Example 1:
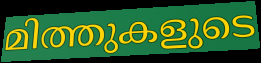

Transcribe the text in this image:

മിത്തുകളുടെ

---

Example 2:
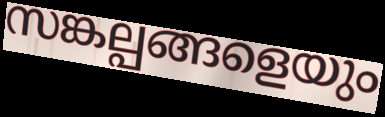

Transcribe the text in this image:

സങ്കല്പങ്ങളെയും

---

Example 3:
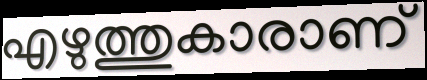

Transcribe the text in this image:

എഴുത്തുകാരാണ്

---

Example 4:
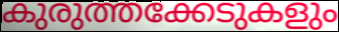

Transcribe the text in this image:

കുരുത്തക്കേടുകളും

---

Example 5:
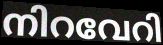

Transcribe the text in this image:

നിറവേറി